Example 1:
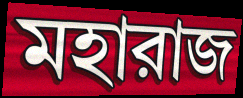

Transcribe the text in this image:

মহারাজ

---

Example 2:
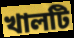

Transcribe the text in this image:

খালটি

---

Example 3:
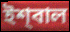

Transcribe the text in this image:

ইশ্‌বাল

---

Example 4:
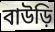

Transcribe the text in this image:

বাউড়ি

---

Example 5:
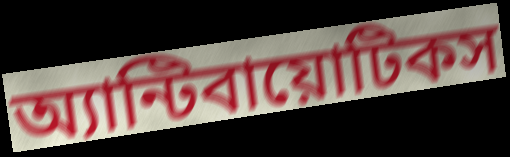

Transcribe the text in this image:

অ্যান্টিবায়োটিকস